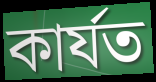
কার্যত